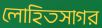
লোহিতসাগর